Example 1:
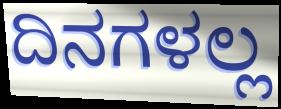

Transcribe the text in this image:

ದಿನಗಳಲ್ಲ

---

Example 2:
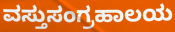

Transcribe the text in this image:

ವಸ್ತುಸಂಗ್ರಹಾಲಯ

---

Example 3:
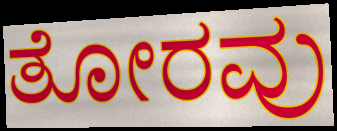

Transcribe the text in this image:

ತೋರವು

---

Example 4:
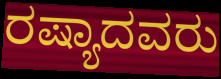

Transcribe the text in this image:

ರಷ್ಯಾದವರು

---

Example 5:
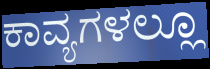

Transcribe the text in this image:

ಕಾವ್ಯಗಳಲ್ಲೂ